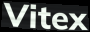
Vitex